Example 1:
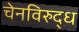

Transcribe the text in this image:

चेनविरुद्ध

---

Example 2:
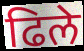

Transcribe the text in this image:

ढिले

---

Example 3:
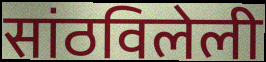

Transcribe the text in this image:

सांठविलेली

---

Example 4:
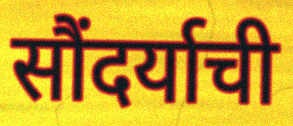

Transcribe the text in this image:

सौंदर्याची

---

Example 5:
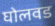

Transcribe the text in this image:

घोलवड